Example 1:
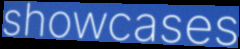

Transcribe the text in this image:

showcases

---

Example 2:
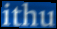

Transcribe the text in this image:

ithu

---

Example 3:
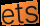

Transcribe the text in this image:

ets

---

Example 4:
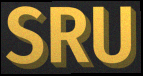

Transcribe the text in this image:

SRU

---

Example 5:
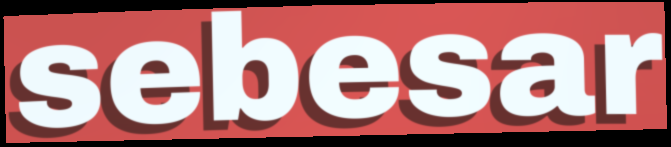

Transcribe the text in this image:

sebesar